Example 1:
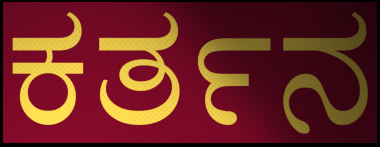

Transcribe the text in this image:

ಕರ್ತನ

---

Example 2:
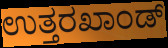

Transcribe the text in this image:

ಉತ್ತರಖಾಂಡ್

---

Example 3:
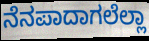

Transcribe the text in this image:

ನೆನಪಾದಾಗಲೆಲ್ಲಾ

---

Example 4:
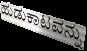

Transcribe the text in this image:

ಹುಡುಕಾಟವನ್ನು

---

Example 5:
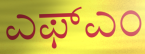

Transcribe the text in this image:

ಎಫ್ಎಂ